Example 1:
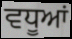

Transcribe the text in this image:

ਵਧੂਆਂ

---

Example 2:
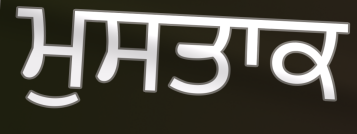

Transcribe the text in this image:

ਮੁਸਤਾਕ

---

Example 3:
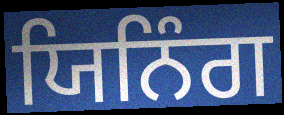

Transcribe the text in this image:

ਯਿਨਿੰਗ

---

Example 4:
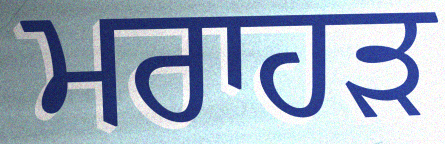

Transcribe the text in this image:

ਮਰਾਹੜ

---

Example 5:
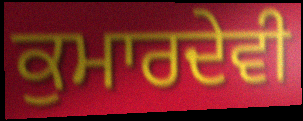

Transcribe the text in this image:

ਕੁਮਾਰਦੇਵੀ